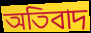
অতিবাদ